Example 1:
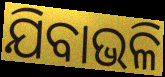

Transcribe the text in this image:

ଯିବାଭଳି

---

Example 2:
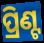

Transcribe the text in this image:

ପ୍ରିଣ୍ଟ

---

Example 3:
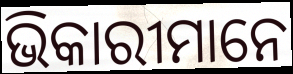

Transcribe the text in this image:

ଭିକାରୀମାନେ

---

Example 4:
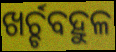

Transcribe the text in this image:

ଖର୍ଚ୍ଚବହୁଳ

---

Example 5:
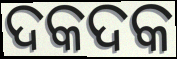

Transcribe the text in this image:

ଦକଦକ